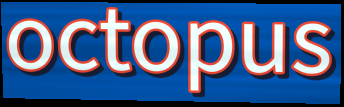
octopus